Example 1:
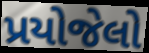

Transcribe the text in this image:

પ્રયોજેલો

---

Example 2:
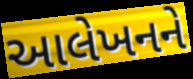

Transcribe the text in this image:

આલેખનને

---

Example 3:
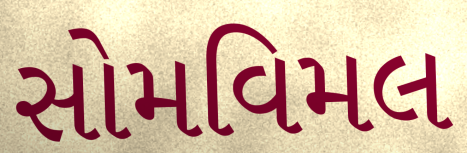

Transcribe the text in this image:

સોમવિમલ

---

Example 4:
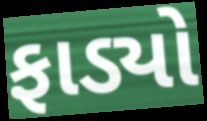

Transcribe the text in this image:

ફાડ્યો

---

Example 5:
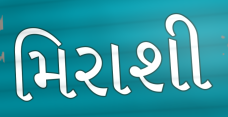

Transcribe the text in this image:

મિરાશી